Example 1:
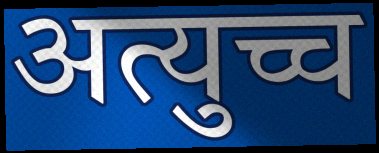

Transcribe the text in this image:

अत्युच्च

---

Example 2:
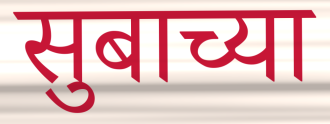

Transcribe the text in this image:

सुबाच्या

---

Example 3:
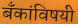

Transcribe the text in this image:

बँकांविषयी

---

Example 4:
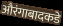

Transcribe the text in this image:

औरंगाबादकडे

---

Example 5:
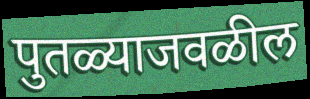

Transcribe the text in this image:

पुतळ्याजवळील